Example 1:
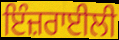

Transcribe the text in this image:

ਇੰਜ਼ਰਾਈਲੀ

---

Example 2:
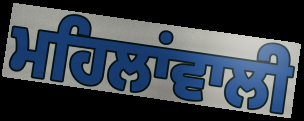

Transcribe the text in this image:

ਮਹਿਲਾਂਵਾਲੀ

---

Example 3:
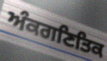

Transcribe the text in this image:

ਅੰਕਗਣਿਤਿਕ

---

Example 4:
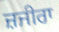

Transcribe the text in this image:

ਜ਼ਜੀਰਾ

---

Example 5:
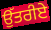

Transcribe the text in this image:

ਉੱਤਰੀਏ